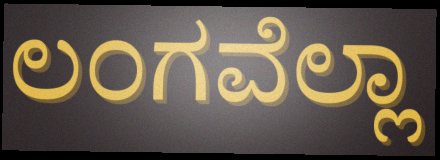
ಲಂಗವೆಲ್ಲಾ